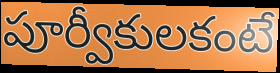
పూర్వీకులకంటే